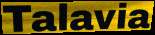
Talavia